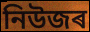
নিউজৰ